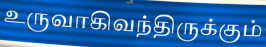
உருவாகிவந்திருக்கும்